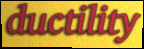
ductility